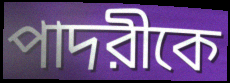
পাদরীকে